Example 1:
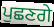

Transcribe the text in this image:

ਪੁਛਣਗੇ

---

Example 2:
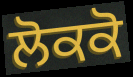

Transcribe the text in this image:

ਲੋਕਕੋ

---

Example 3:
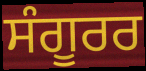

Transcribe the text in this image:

ਸੰਗੂਰਰ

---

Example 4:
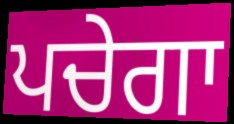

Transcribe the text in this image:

ਪਚੇਗਾ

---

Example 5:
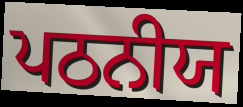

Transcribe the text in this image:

ਪਠਨੀਯ